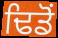
ਢਿਡੋਂ